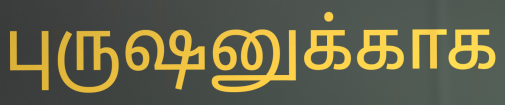
புருஷனுக்காக